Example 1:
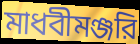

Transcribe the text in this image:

মাধবীমঞ্জরি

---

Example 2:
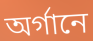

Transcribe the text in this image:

অর্গানে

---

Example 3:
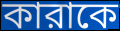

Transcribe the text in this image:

কারাকে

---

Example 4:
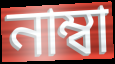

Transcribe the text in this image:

নাম্বা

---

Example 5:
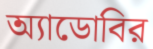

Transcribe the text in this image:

অ্যাডোবির